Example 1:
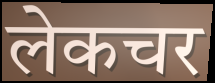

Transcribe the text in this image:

लेकचर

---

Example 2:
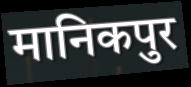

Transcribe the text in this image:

मानिकपुर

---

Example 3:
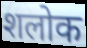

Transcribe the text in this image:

शलोक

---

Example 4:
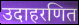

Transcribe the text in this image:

उदाहरणित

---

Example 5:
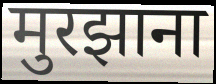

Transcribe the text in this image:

मुरझाना